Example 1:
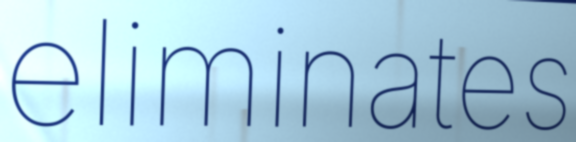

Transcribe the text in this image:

eliminates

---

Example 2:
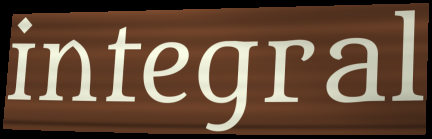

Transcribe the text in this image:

integral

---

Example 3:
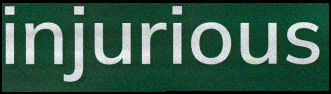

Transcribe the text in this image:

injurious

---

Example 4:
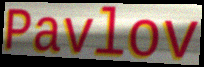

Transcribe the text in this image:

Pavlov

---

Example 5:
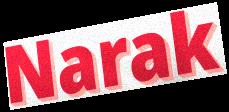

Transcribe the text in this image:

Narak